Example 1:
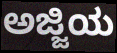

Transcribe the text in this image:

ಅಜ್ಜಿಯ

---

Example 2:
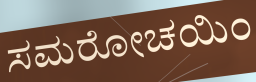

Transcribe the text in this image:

ಸಮರೋಚಯಿಂ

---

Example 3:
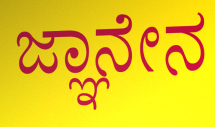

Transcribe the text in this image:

ಜ್ಞಾನೇನ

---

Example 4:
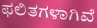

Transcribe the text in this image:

ಫಲಿತಗಳಾಗಿವೆ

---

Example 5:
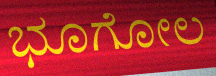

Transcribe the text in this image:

ಭೂಗೋಲ